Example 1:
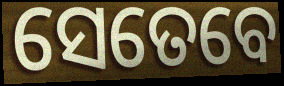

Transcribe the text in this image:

ସେତେବେ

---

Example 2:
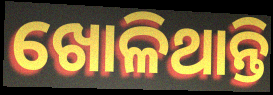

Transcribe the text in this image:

ଖୋଳିଥାନ୍ତି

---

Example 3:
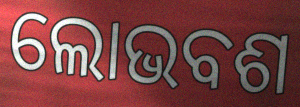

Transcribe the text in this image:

ଲୋଭବଶ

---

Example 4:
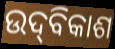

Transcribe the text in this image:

ଉଦ୍‌ବିକାଶ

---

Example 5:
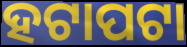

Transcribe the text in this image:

ହଟାପଟା